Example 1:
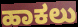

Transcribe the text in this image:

ಹಾಕಲು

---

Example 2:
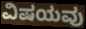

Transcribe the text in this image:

ವಿಷಯವು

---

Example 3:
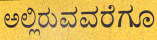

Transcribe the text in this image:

ಅಲ್ಲಿರುವವರೆಗೂ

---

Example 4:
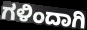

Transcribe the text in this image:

ಗಳಿಂದಾಗಿ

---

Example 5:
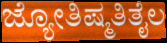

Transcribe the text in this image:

ಜ್ಯೋತಿಷ್ಮತಿತೈಲ